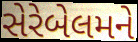
સેરેબેલમને